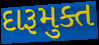
દારૂમુક્ત